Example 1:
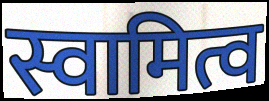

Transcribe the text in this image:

स्वामित्व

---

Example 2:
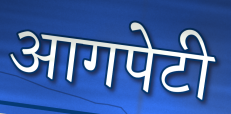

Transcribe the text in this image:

आगपेटी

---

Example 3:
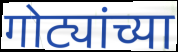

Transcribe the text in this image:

गोट्यांच्या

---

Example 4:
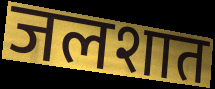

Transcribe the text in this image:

जलशात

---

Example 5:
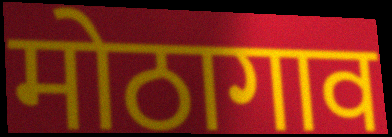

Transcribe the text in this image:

मोठागाव